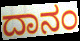
ದಾನಂ